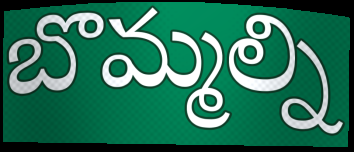
బొమ్మల్ని